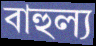
বাহুল্য